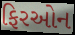
ફિરઓન